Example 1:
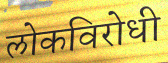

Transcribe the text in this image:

लोकविरोधी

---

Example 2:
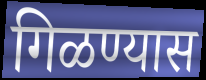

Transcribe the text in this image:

गिळण्यास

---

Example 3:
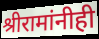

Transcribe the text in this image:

श्रीरामांनीही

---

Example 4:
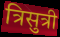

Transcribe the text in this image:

त्रिसुत्री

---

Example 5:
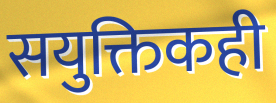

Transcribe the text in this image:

सयुक्तिकही